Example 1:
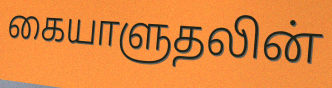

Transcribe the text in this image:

கையாளுதலின்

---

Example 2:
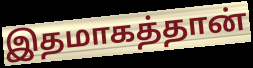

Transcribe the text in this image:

இதமாகத்தான்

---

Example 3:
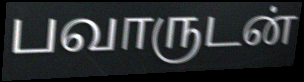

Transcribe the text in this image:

பவாருடன்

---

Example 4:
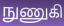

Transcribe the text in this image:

நுணுகி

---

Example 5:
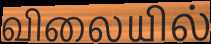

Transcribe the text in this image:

விலையில்